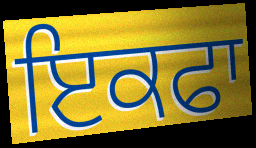
ਇਕਫਾ